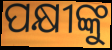
ପକ୍ଷୀଙ୍କୁ